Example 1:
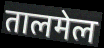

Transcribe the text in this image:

तालमेल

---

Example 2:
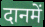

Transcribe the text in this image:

दानमें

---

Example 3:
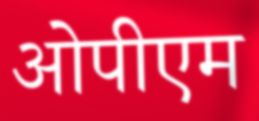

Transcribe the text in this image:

ओपीएम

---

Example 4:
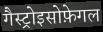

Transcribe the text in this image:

गैस्ट्रोइसोफ़ेगल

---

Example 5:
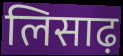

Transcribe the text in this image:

लिसाढ़